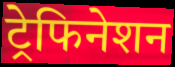
ट्रेफिनेशन